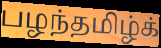
பழந்தமிழ்க்